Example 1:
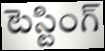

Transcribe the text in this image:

టెస్టింగ్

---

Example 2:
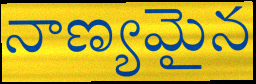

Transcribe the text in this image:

నాణ్యమైన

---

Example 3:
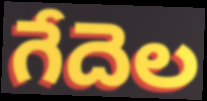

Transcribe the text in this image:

గేదెల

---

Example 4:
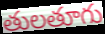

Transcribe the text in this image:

తులతూగు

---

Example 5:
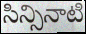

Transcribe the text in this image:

సిన్సినాటి